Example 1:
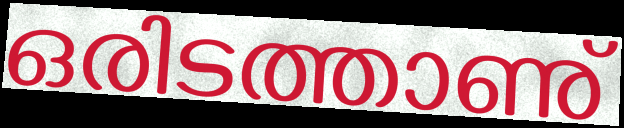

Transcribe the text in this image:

ഒരിടത്താണു്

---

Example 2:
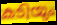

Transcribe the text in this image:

കടിയും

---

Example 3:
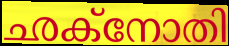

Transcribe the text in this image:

ഛക്നോതി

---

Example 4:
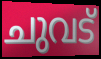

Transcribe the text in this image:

ചുവട്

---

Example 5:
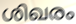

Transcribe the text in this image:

ശിഖരം